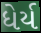
ધેર્ય